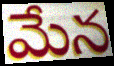
మేన